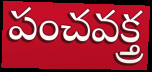
పంచవక్త్ర